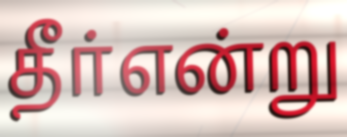
தீர்என்று